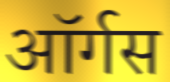
ऑर्गस